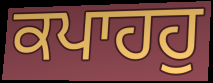
ਕਪਾਹਹੁ